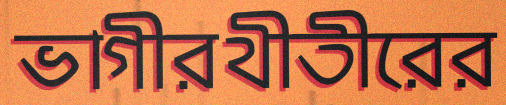
ভাগীরথীতীরের